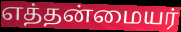
எத்தன்மையர்